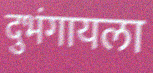
दुभंगायला